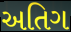
અતિગ